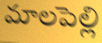
మాలపెల్లి